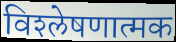
विश्लेषणात्मक